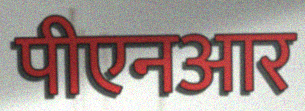
पीएनआर